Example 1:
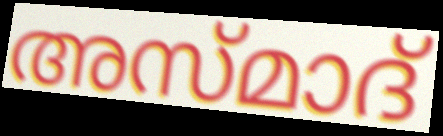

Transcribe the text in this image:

അസ്മാദ്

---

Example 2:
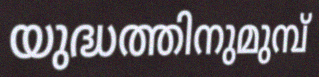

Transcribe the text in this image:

യുദ്ധത്തിനുമുമ്പ്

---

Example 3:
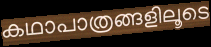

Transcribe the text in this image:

കഥാപാത്രങ്ങളിലൂടെ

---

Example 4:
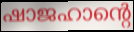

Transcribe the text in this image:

ഷാജഹാന്റെ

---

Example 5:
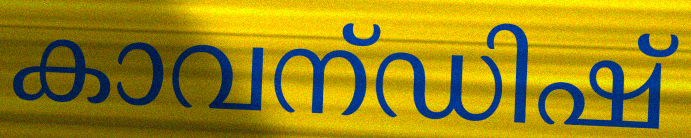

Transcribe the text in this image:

കാവന്ഡിഷ്